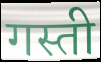
गस्ती